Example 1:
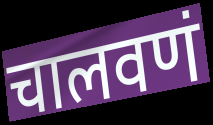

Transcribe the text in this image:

चालवणं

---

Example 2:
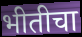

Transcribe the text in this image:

भीतीचा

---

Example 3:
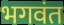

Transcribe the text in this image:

भगवंत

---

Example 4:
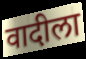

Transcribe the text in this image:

वादीला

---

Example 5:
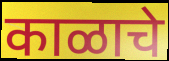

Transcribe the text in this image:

काळाचे